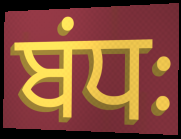
ਬਂਧਃ